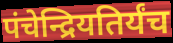
पंचेन्द्रियतिर्यंच